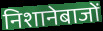
निशानेबाजों